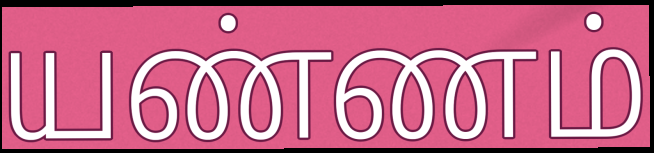
யண்ணம்